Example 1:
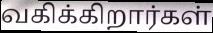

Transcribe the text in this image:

வகிக்கிறார்கள்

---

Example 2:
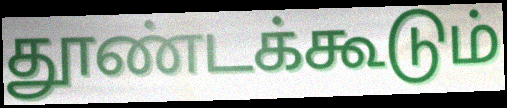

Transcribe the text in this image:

தூண்டக்கூடும்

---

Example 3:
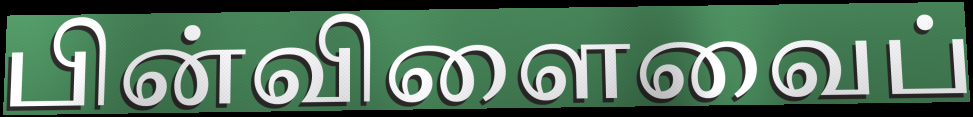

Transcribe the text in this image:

பின்விளைவைப்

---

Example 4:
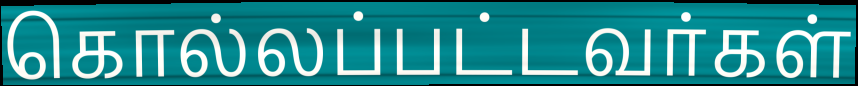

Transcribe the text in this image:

கொல்லப்பட்டவர்கள்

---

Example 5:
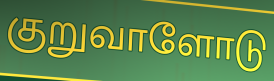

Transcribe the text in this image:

குறுவாளோடு